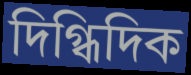
দিগ্ধিদিক